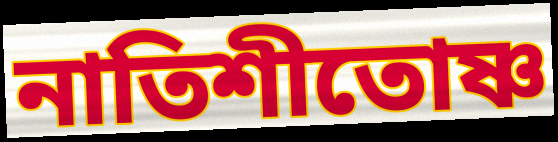
নাতিশীতোষ্ণ